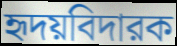
হৃদয়বিদারক